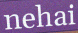
nehai